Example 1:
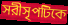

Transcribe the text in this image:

সরীসৃপটিকে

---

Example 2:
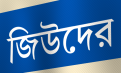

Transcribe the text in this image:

জিউদের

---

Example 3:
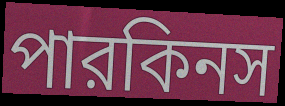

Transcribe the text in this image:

পারকিনস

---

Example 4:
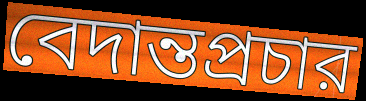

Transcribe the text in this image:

বেদান্তপ্রচার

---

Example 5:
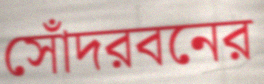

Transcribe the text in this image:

সোঁদরবনের